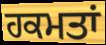
ਹਕਮਤਾਂ